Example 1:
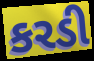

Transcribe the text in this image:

કરડી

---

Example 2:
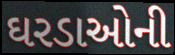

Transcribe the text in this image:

ઘરડાઓની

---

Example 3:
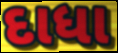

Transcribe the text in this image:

દાધા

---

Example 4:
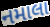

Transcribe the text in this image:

નમાલા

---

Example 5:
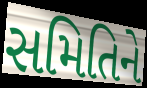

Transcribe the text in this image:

સમિતિને